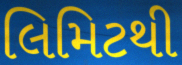
લિમિટથી